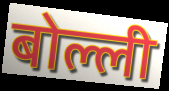
बोल्ली